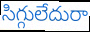
సిగ్గులేదురా